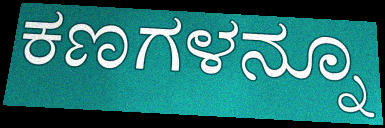
ಕಣಗಳನ್ನೂ